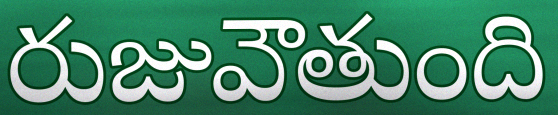
రుజువౌతుంది